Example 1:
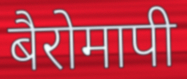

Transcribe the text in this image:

बैरोमापी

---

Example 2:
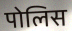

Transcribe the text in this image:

पोलिस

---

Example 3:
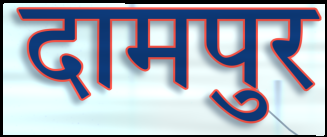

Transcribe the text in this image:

दामपुर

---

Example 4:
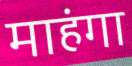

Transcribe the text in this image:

माहंगा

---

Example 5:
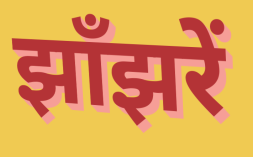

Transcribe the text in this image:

झाँझरें